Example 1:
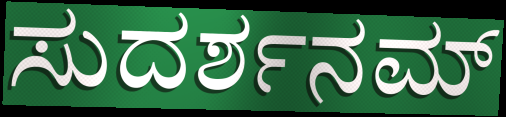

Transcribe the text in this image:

ಸುದರ್ಶನಮ್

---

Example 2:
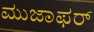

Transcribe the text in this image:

ಮುಜಾಫರ್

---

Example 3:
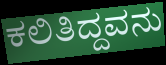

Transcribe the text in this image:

ಕಲಿತಿದ್ದವನು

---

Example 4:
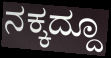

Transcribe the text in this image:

ನಕ್ಕದ್ದೂ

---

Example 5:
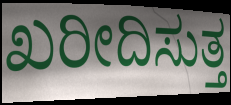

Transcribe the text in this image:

ಖರೀದಿಸುತ್ತ